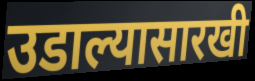
उडाल्यासारखी